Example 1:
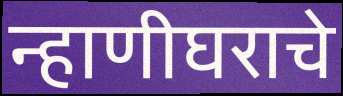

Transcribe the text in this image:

न्हाणीघराचे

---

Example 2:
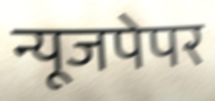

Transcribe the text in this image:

न्यूजपेपर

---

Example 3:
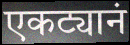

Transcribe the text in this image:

एकट्यानं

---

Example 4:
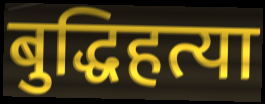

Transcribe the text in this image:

बुद्धिहत्या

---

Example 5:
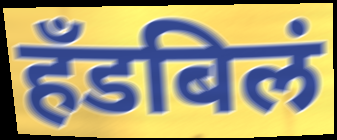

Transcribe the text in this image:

हँडबिलं